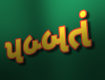
પબ્બતં